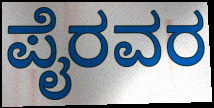
ಪೈರವರ